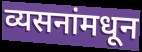
व्यसनांमधून